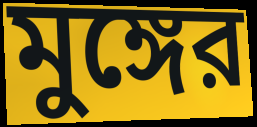
মুঙ্গের